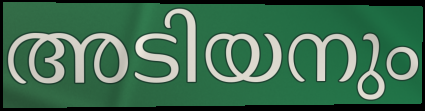
അടിയനും